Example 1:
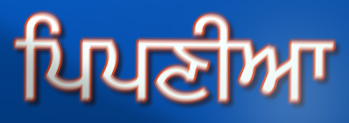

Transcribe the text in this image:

ਪਿਪਣੀਆ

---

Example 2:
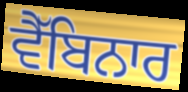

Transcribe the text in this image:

ਵੈੱਬਿਨਾਰ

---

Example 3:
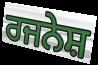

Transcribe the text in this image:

ਰਜਨੇਸ਼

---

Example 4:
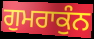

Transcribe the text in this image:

ਗੁਮਰਾਕੁੰਨ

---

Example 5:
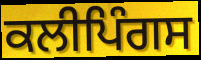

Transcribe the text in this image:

ਕਲੀਪਿੰਗਸ